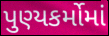
પુણ્યકર્મોમાં